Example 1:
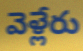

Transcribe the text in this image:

వెళ్లేరు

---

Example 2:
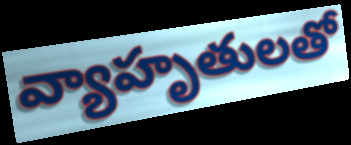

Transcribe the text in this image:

వ్యాహృతులతో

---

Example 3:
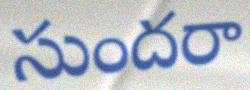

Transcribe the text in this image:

సుందరా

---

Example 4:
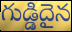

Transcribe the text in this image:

గుడ్డిదైన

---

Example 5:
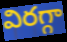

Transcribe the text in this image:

విరగ్గా